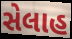
સેલાહ